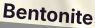
Bentonite